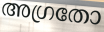
അഗ്രതോ